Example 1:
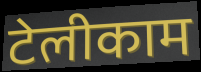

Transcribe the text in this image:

टेलीकाम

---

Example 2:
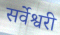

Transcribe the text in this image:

सर्वेश्वरी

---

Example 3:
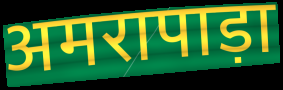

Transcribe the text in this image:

अमरापाड़ा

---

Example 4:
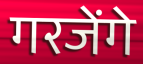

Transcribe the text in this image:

गरजेंगे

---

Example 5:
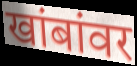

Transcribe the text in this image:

खांबांवर